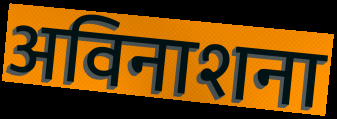
अविनाशना